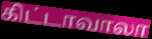
கிட்டாவாலா